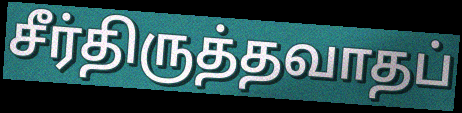
சீர்திருத்தவாதப்